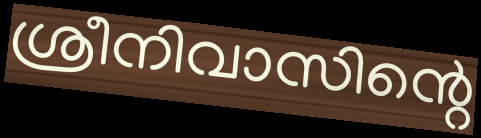
ശ്രീനിവാസിന്റെ